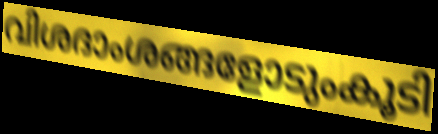
വിശദാംശങ്ങളോടുംകൂടി